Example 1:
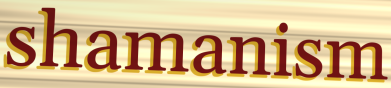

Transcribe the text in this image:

shamanism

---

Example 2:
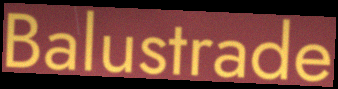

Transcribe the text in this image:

Balustrade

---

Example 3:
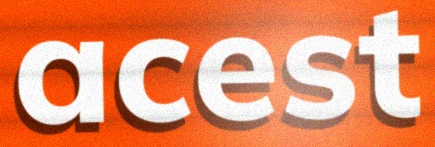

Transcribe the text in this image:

acest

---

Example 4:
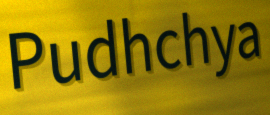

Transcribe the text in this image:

Pudhchya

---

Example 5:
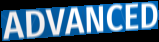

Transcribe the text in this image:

ADVANCED